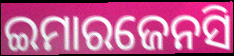
ଇମାରଜେନସି